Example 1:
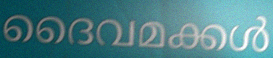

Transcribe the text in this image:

ദൈവമക്കൾ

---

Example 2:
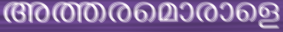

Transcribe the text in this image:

അത്തരമൊരാളെ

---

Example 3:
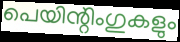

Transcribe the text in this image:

പെയിന്റിംഗുകളും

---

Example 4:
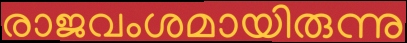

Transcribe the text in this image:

രാജവംശമായിരുന്നു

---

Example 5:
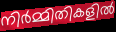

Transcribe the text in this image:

നിർമ്മിതികളിൽ